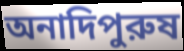
অনাদিপুরুষ